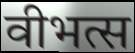
वीभत्स